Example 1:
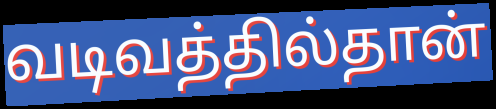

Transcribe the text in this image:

வடிவத்தில்தான்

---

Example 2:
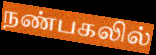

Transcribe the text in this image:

நண்பகலில்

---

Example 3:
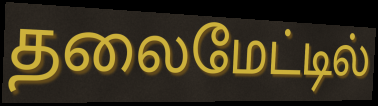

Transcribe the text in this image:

தலைமேட்டில்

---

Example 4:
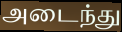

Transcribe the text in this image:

அடைந்து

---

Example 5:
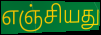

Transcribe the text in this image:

எஞ்சியது